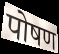
पोषण